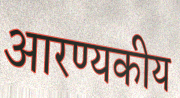
आरण्यकीय